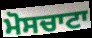
ਮੋਸਚਾਟਾ